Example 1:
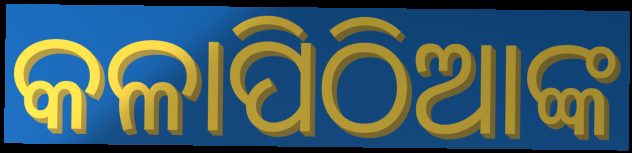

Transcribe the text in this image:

କଳାପିଠିଆଙ୍କ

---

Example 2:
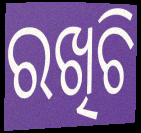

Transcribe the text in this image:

ରଖିଚି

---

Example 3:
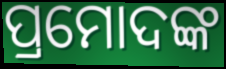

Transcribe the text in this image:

ପ୍ରମୋଦଙ୍କ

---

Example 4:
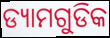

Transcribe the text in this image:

ଡ୍ୟାମଗୁଡିକ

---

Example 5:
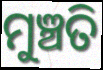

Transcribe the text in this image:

ମୁଞ୍ଚତି